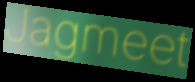
Jagmeet